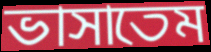
ভাসাতেম